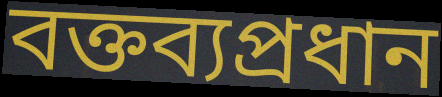
বক্তব্যপ্রধান